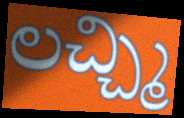
లచ్చ్మి